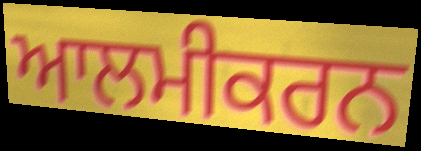
ਆਲਮੀਕਰਨ